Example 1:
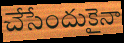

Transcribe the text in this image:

చేసేందుకైనా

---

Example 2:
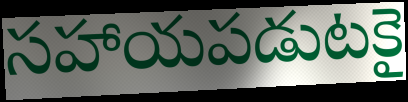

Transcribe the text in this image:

సహాయపడుటకై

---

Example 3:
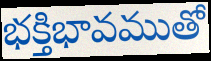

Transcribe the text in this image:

భక్తిభావముతో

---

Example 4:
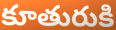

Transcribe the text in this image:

కూతురుకి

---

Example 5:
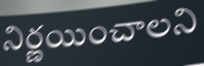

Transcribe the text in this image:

నిర్ణయించాలని